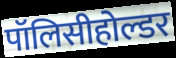
पॉलिसीहोल्डर